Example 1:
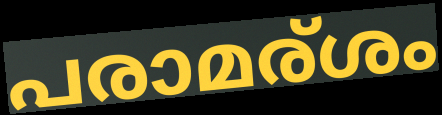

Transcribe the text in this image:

പരാമര്ശം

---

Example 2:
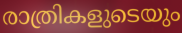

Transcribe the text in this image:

രാത്രികളുടെയും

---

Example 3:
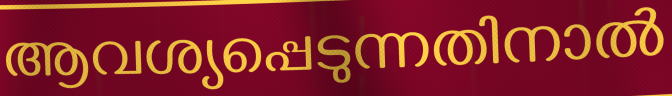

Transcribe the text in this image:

ആവശ്യപ്പെടുന്നതിനാൽ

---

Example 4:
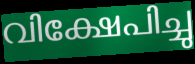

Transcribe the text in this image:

വിക്ഷേപിച്ചു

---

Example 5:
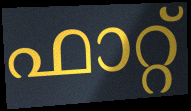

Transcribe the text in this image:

ഫാറ്റ്